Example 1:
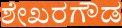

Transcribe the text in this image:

ಶೇಖರಗೌಡ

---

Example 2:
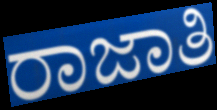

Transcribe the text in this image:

ರಾಜಾತಿ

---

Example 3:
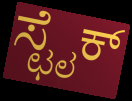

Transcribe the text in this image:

ಸ್ಟೈಕ್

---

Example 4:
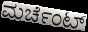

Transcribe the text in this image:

ಮರ್ಚೆಂಟ್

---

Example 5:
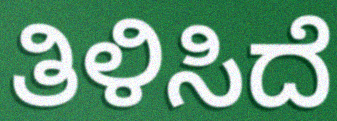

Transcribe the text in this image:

ತಿಳಿಸಿದೆ